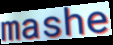
mashe